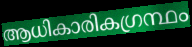
ആധികാരികഗ്രന്ഥം